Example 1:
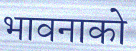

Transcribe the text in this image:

भावनाको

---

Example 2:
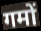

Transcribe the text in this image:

गमों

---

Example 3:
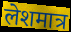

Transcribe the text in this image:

लेशमात्र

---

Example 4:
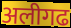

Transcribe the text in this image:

अलीगढ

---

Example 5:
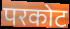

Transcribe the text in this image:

परकोट